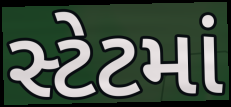
સ્ટેટમાં